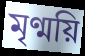
মৃণ্ময়ি